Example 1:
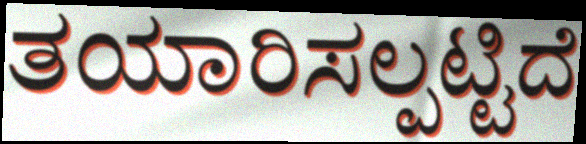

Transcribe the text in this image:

ತಯಾರಿಸಲ್ಪಟ್ಟಿದೆ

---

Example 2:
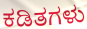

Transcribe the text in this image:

ಕಡಿತಗಳು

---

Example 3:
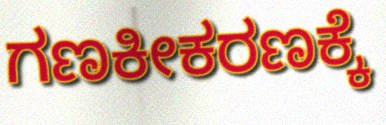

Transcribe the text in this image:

ಗಣಕೀಕರಣಕ್ಕೆ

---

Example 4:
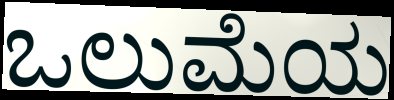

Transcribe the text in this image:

ಒಲುಮೆಯ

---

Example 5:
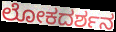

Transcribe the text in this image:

ಲೋಕದರ್ಶನ